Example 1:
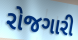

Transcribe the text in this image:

રોજગારી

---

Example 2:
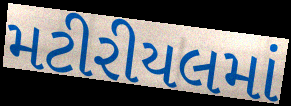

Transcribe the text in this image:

મટીરીયલમાં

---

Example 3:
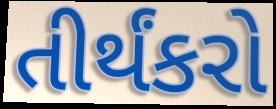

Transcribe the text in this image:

તીર્થંકરો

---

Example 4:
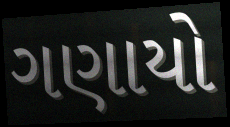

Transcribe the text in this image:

ગણાયો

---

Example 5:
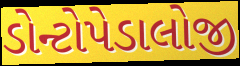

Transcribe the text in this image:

ડોન્ટોપેડાલોજી